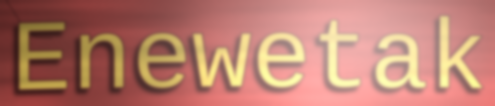
Enewetak